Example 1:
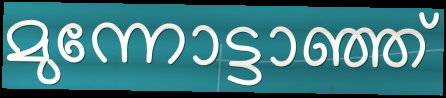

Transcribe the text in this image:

മുന്നോട്ടാഞ്ഞ്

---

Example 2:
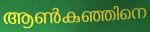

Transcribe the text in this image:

ആൺകുഞ്ഞിനെ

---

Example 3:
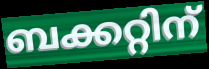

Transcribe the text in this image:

ബക്കറ്റിന്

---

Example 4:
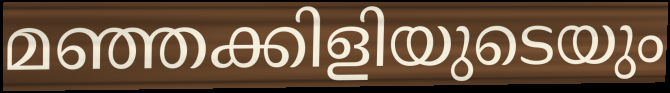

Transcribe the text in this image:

മഞ്ഞക്കിളിയുടെയും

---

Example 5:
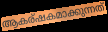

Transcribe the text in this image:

ആകര്ഷകമാക്കുന്നത്